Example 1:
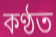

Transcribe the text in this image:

কণ্ঠত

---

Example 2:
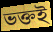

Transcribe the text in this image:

ভক্তই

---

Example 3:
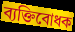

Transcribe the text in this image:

ব্যক্তিবোধক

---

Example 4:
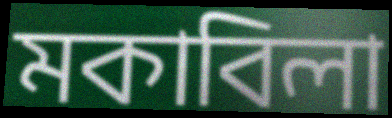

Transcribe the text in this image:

মকাবিলা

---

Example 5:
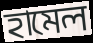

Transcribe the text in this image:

হামেল